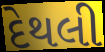
દેથલી